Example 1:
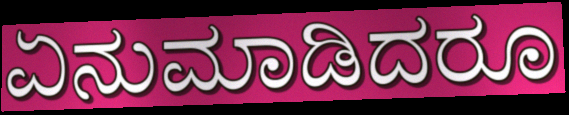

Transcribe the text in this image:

ಏನುಮಾಡಿದರೂ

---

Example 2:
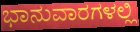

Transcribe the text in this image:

ಭಾನುವಾರಗಳಲ್ಲಿ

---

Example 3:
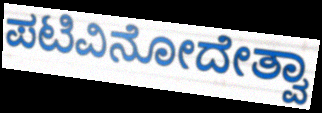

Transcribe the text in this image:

ಪಟಿವಿನೋದೇತ್ವಾ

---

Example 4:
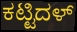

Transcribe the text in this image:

ಕಟ್ಟಿದಳ್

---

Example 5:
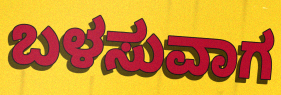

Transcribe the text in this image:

ಬಳಸುವಾಗ